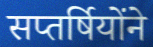
सप्तर्षियोंने